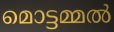
മൊട്ടമ്മൽ